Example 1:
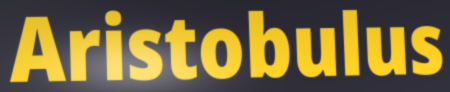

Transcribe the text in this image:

Aristobulus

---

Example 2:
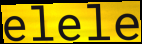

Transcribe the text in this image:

elele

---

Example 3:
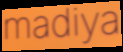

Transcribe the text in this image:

madiya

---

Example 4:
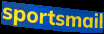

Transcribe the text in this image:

sportsmail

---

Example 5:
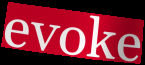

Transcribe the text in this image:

evoke